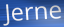
Jerne